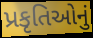
પ્રકૃતિઓનું